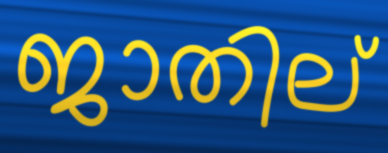
ജാതില്